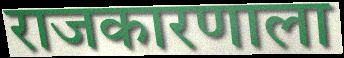
राजकारणाला